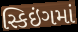
સ્કિઇંગમાં